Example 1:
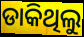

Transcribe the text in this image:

ଡାକିଥିଲୁ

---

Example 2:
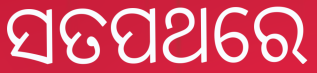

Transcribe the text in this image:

ସତପଥରେ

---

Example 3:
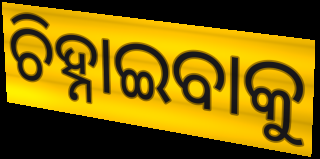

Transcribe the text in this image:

ଚିହ୍ନାଇବାକୁ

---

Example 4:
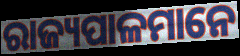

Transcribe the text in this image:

ରାଜ୍ୟପାଳମାନେ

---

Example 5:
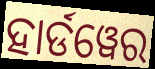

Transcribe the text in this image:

ହାର୍ଡୱେର